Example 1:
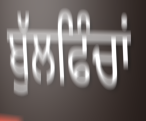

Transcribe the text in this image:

ਬੁੱਲਫਿੰਚਾਂ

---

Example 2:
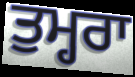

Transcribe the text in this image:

ਤੁਮ੍ਹਰਾ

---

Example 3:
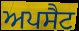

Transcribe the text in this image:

ਅਪਸੈਟ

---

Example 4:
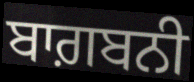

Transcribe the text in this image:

ਬਾਗ਼ਬਨੀ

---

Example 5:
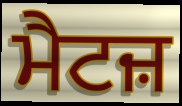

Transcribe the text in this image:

ਮੈਟਜ਼